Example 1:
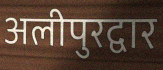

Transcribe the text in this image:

अलीपुरद्वार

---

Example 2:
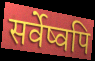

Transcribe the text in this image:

सर्वेष्वपि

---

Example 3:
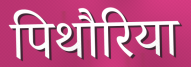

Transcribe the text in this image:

पिथौरिया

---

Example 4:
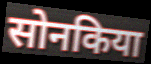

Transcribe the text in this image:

सोनकिया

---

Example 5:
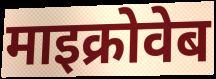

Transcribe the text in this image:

माइक्रोवेब